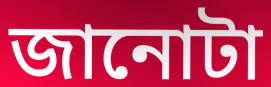
জানোটা